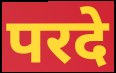
परदे